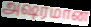
அஷரமான